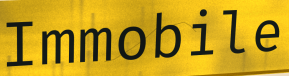
Immobile